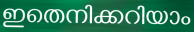
ഇതെനിക്കറിയാം